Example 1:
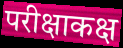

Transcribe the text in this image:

परीक्षाकक्ष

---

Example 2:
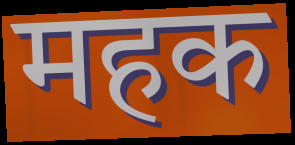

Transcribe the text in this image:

महक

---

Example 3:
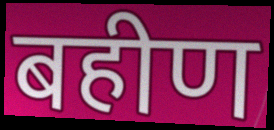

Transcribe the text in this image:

बहीण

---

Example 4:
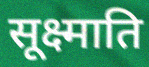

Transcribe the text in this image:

सूक्ष्माति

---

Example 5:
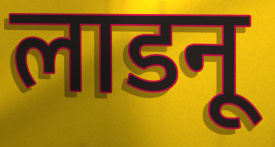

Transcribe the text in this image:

लाडनू